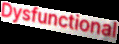
Dysfunctional